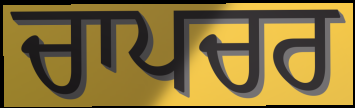
ਚਾਪਚਰ